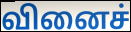
வினைச்